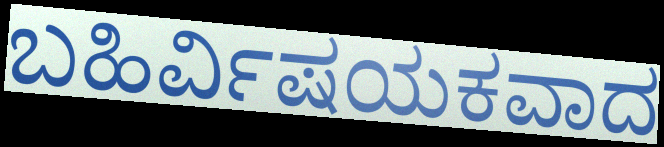
ಬಹಿರ್ವಿಷಯಕವಾದ